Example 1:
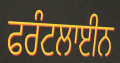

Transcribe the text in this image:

ਫਰੰਟਲਾਈਨ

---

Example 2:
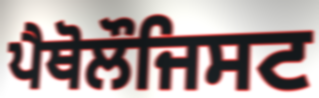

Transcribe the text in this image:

ਪੈਥੋਲੌਜਿਸਟ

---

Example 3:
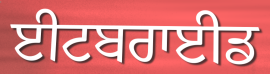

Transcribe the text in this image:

ਈਟਬਰਾਈਡ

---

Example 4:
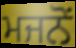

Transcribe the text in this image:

ਮਜਨੋਂ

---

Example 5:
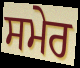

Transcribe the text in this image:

ਸਮੇਰ